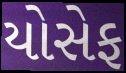
યોસેફ